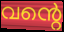
വന്റെ